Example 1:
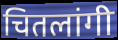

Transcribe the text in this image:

चितलांगी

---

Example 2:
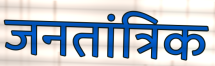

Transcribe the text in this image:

जनतांत्रिक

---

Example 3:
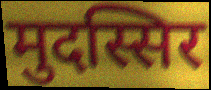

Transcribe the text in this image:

मुदस्सिर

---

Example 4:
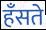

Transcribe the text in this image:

हँसते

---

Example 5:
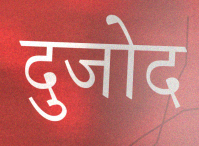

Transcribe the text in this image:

दुजोद